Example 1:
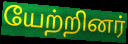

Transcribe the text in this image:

யேற்றினர்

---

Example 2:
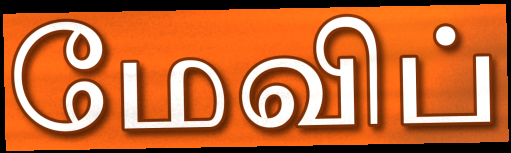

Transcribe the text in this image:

மேவிப்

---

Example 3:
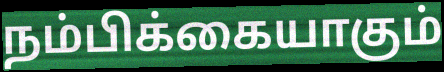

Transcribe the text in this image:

நம்பிக்கையாகும்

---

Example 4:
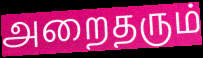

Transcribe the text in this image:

அறைதரும்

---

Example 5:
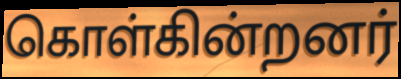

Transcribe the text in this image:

கொள்கின்றனர்